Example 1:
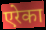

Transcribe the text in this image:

एरेका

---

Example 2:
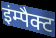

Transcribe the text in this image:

इंम्पैक्ट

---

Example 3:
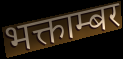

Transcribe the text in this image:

भक्ताम्बर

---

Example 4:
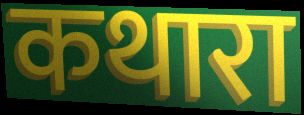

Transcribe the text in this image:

कथारा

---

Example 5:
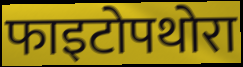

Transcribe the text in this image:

फाइटोपथोरा